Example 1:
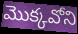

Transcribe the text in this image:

మొక్కవోని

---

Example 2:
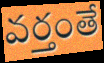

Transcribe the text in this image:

వర్తంతే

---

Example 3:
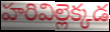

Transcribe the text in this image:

హరివిల్లెక్కడ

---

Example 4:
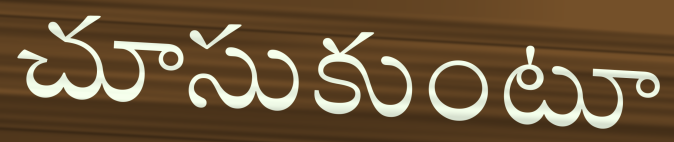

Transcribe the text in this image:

చూసుకుంటూ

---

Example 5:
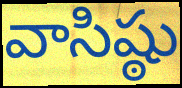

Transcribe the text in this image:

వాసిష్ఠు